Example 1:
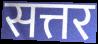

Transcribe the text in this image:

सत्तर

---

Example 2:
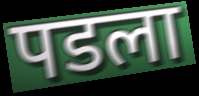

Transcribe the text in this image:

पडला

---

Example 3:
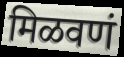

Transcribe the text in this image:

मिळवणं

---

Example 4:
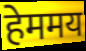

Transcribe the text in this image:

हेममय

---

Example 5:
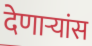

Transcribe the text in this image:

देणाऱ्यांस